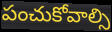
పంచుకోవాల్సి